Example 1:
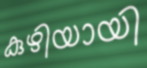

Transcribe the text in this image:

കുഴിയായി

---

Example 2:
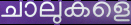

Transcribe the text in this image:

ചാലുകളെ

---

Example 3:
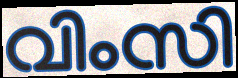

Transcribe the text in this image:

വിംസി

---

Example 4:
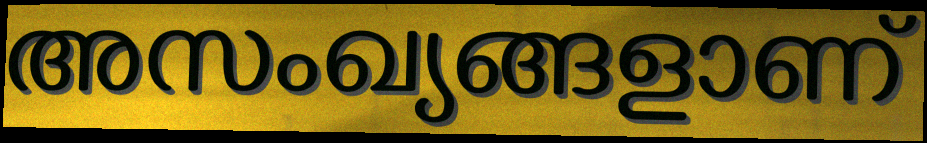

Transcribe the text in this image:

അസംഖ്യങ്ങളാണ്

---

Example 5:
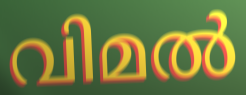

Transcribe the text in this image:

വിമൽ